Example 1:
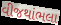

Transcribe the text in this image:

વીજથાંભલા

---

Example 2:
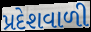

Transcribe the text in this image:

પ્રદેશવાળી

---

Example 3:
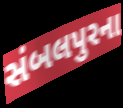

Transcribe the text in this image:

સંબલપુરના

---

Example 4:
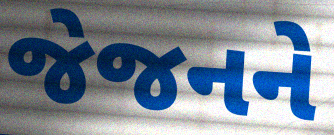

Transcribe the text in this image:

જેજનને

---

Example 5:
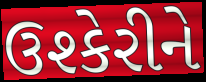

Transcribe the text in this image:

ઉશ્કેરીને